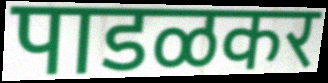
पाडळकर